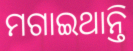
ମଗାଇଥାନ୍ତି